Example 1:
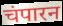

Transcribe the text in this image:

चंपारन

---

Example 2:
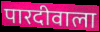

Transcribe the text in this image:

पारदीवाला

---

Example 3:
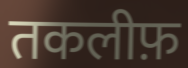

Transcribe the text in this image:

तकलीफ़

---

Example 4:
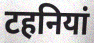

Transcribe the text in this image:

टहनियां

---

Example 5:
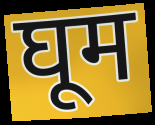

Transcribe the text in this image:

घूम